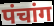
पंचांग